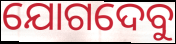
ଯୋଗଦେବୁ